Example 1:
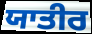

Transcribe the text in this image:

ਯਾਤੀਰ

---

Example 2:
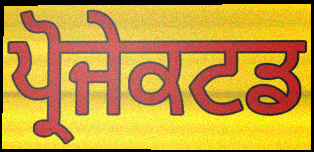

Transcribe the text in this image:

ਪ੍ਰੋਜੇਕਟਡ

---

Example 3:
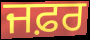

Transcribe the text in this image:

ਜਫ਼ਰ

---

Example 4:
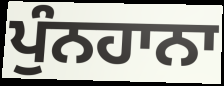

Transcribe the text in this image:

ਪੁੰਨਹਾਨਾ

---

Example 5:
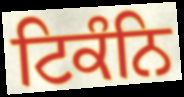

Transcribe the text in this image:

ਟਿਕੰਨਿ